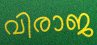
വിരാജ